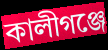
কালীগঞ্জে